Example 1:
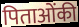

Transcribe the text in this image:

पिताओंकी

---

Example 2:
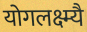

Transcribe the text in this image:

योगलक्ष्म्यै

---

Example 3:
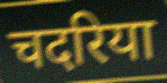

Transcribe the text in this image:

चदरिया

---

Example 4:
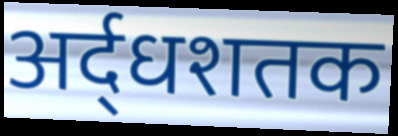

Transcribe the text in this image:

अर्द्धशतक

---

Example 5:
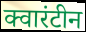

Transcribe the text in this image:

क्वारंटीन